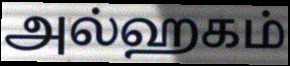
அல்ஹகம்